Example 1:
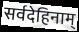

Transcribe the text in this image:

सर्वदेहिनाम्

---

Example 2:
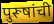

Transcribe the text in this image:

पुरूषांची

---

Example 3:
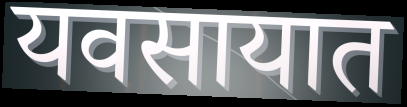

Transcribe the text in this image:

यवसायात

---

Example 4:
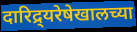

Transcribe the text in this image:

दारिद्र्यरेषेखालच्या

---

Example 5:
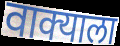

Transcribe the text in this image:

वाक्‍याला